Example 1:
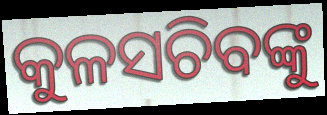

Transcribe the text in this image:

କୁଳସଚିବଙ୍କୁ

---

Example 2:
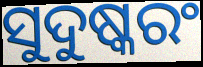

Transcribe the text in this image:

ସୁଦୁଷ୍କରଂ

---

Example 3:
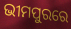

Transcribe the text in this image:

ଭୀମପୁରରେ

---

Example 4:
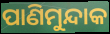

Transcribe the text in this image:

ପାଣିମୁନ୍ଦାକ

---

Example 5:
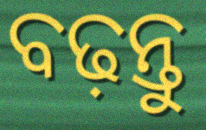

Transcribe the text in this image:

ବଢ଼ନ୍ତୁ